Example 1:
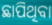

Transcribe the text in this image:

ଛାପିଥିବା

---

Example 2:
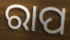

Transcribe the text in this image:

ରାପ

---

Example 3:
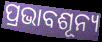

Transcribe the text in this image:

ପ୍ରଭାବଶୂନ୍ୟ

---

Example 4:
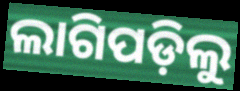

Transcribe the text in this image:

ଲାଗିପଡ଼ିଲୁ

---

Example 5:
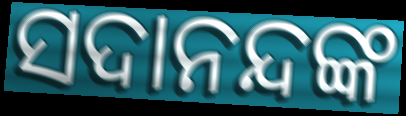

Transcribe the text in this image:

ସଦାନନ୍ଦଙ୍କ